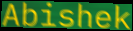
Abishek